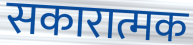
सकारात्मक